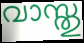
വാസ്തു